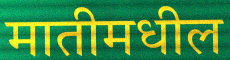
मातीमधील